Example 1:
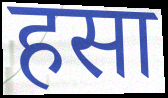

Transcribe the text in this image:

हसा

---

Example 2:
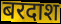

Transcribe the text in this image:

बरदाश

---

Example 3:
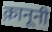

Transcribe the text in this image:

क़ानूनी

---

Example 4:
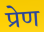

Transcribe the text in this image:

प्रेण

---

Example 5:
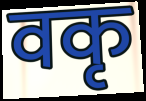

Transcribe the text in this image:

वकृ